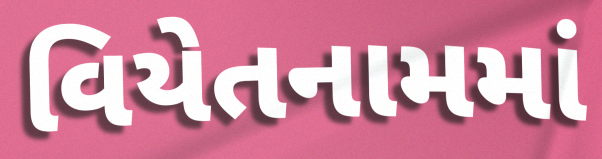
વિયેતનામમાં